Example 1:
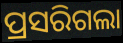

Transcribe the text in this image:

ପ୍ରସରିଗଲା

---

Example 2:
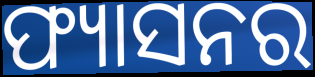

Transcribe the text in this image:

ଫ୍ୟାସନର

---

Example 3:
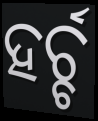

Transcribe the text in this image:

ହର୍ଚ୍ଚ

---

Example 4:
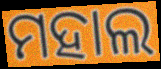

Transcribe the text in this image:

ମହାଲ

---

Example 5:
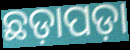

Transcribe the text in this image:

ଛଡ଼ାପଡ଼ା